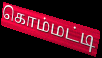
கொம்மட்டி